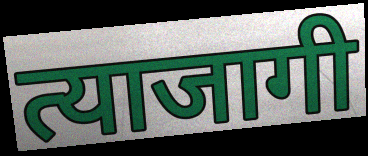
त्याजागी